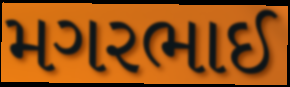
મગરભાઈ